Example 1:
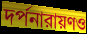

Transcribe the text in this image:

দর্পনারায়ণও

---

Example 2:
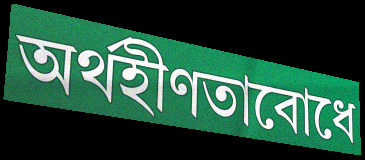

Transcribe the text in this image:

অর্থহীণতাবোধে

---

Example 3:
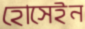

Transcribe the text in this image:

হোসেইন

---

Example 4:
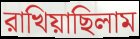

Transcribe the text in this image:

রাখিয়াছিলাম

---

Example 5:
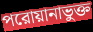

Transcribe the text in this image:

পরোয়ানাভুক্ত